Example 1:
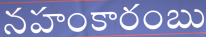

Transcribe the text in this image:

నహంకారంబు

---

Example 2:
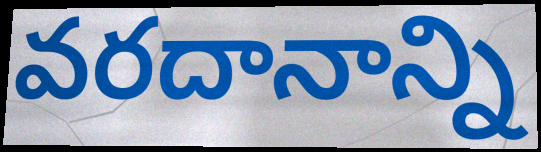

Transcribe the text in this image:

వరదానాన్ని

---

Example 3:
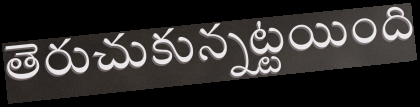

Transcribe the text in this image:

తెరుచుకున్నట్టయింది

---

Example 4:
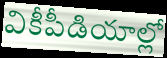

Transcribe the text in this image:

వికీపీడియాల్లో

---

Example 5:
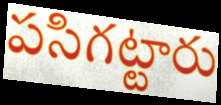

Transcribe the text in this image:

పసిగట్టారు